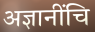
अज्ञानींचि